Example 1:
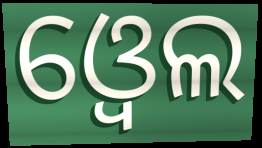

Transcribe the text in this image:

ଓ୍ବେଲ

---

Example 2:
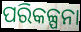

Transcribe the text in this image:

ପରିକଳ୍ପନା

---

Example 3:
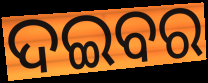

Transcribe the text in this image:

ଦଇବର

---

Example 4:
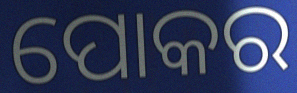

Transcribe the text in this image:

ପୋକର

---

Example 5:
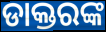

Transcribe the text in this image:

ଡାକ୍ତରଙ୍କ